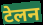
टेलन